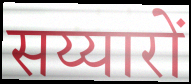
सय्यारों